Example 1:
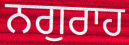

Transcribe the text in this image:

ਨਗੁਰਾਹ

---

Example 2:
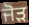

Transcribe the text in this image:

ਜੋੜ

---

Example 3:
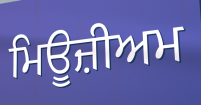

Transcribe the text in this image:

ਮਿਊਜ਼ੀਅਮ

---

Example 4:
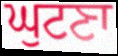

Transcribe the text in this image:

ਘੁਟਣਾ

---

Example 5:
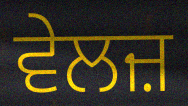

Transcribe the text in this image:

ਵੇਲਜ਼